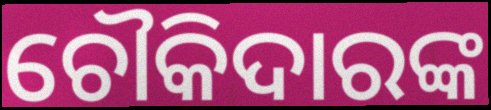
ଚୌକିଦାରଙ୍କ